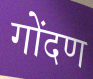
गोंदण